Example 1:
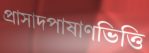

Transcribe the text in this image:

প্রাসাদপাষাণভিত্তি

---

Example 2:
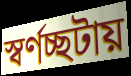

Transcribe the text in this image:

স্বর্ণচ্ছটায়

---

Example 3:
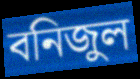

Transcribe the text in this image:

বনিজুল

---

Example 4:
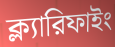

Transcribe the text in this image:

ক্ল্যারিফাইং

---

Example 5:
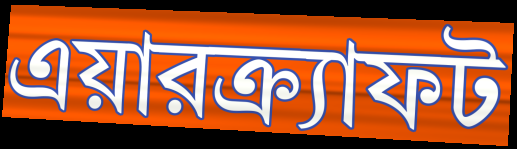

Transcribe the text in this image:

এয়ারক্র্যাফট